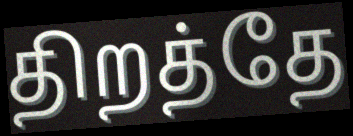
திறத்தே